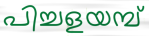
പിച്ചളയമ്പ്